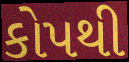
કોપથી